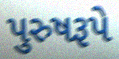
પુરુષરૂપે